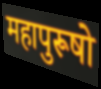
महापुरूषो